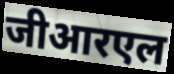
जीआरएल